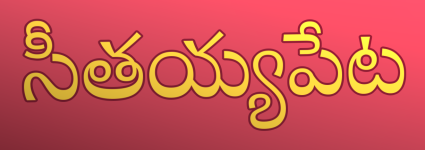
సీతయ్యపేట